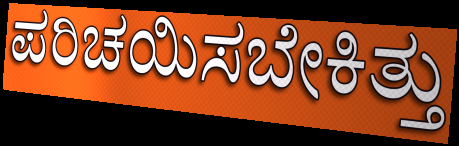
ಪರಿಚಯಿಸಬೇಕಿತ್ತು